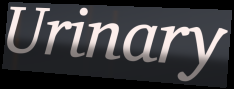
Urinary